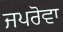
ਜਪਰੋਵਾ